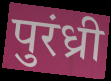
पुरंध्री